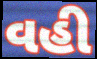
વહી